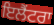
ਇਲੈਂਟਰਾ